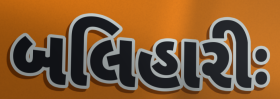
બલિહારીઃ